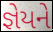
જ્ઞેયને